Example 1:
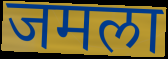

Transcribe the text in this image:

जमला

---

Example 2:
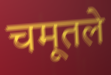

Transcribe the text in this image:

चमूतले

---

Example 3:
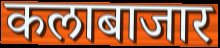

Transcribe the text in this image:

कलाबाजार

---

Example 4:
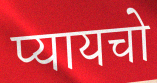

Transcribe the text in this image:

प्यायचो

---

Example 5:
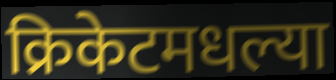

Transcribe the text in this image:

क्रिकेटमधल्या